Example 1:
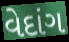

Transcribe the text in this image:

વેદાંગ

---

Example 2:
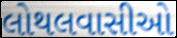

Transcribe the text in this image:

લોથલવાસીઓ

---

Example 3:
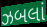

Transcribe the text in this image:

ઝબલાં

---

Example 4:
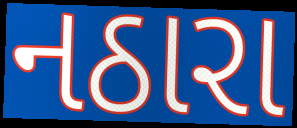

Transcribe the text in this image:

નઠારા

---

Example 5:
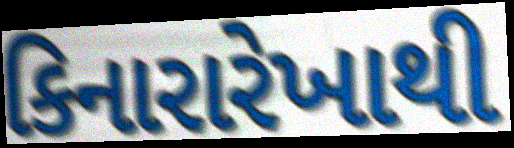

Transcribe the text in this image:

કિનારારેખાથી